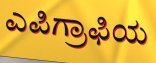
ಎಪಿಗ್ರಾಫಿಯ